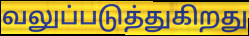
வலுப்படுத்துகிறது